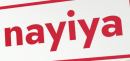
nayiya